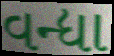
વન્દ્યા